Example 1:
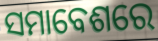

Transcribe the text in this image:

ସମାବେଶରେ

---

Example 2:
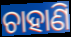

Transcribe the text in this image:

ଚାହାଣି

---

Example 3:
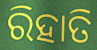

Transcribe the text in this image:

ରିହାତି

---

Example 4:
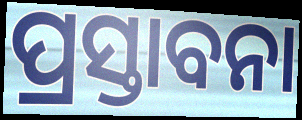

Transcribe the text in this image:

ପ୍ରସ୍ତାବନା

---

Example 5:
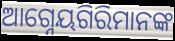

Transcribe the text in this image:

ଆଗ୍ନେୟଗିରିମାନଙ୍କ